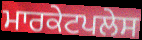
ਮਾਰਕੇਟਪਲੇਸ